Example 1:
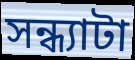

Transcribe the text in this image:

সন্ধ্যাটা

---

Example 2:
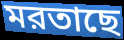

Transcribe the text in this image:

মরতাছে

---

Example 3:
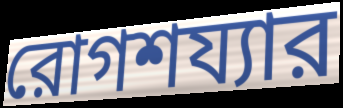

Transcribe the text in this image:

রোগশয্যার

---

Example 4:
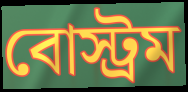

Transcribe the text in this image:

বোস্ট্রম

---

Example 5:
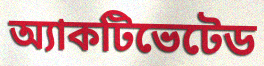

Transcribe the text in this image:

অ্যাকটিভেটেড